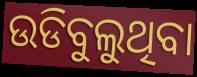
ଉଡିବୁଲୁଥିବା